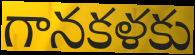
గానకళకు